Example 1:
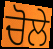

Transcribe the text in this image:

ਚੋਲੇ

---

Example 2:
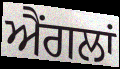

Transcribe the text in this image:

ਐਂਗਲਾਂ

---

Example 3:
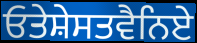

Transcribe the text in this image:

ਓਤੇਸ਼ੇਸਤਵੈਨਿਏ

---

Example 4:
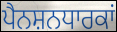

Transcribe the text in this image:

ਪੈਨਸ਼ਨਧਾਰਕਾਂ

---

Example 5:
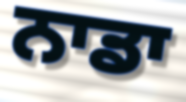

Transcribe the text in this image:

ਨਾਡਾ